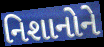
નિશાનોને